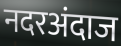
नदरअंदाज